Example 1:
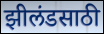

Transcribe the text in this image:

झीलंडसाठी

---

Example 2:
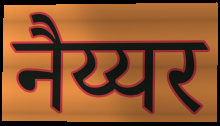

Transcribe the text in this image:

नैय्यर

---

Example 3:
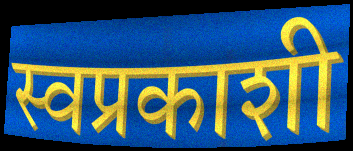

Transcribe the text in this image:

स्वप्रकाशी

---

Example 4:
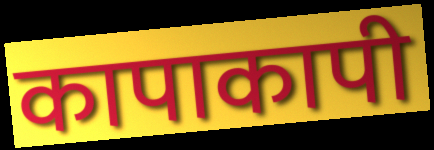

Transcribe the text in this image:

कापाकापी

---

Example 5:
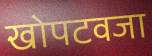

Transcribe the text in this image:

खोपटवजा